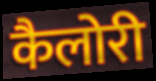
कैलोरी